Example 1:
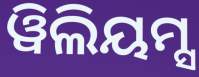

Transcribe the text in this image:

ୱିଲିୟମ୍ସ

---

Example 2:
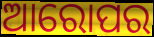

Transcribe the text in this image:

ଆରୋପର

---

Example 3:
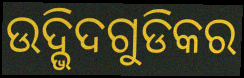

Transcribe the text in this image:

ଉଦ୍ଭିଦଗୁଡିକର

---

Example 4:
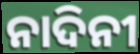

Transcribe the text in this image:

ନାଦିନୀ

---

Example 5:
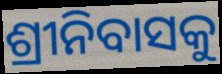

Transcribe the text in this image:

ଶ୍ରୀନିବାସକୁ